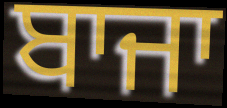
ਬਾਜਾ